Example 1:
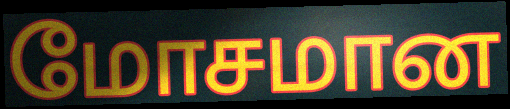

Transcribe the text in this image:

மோசமான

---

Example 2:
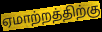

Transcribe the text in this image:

ஏமாற்றத்திற்கு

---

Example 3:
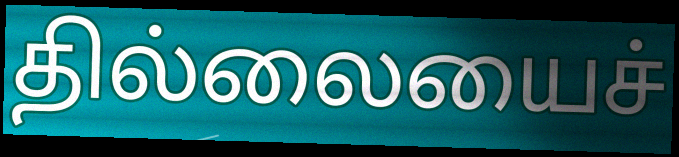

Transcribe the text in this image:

தில்லையைச்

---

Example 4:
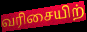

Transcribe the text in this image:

வரிசையிற்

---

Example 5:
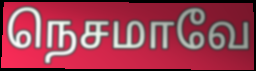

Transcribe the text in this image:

நெசமாவே